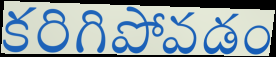
కరిగిపోవడం